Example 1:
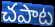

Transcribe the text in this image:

చపాట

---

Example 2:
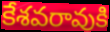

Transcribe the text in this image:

కేశవరావుకి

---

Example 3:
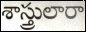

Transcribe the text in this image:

శాస్త్రులారా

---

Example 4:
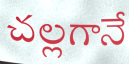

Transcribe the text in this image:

చల్లగానే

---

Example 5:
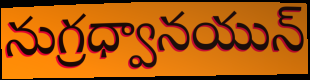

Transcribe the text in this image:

నుగ్రధ్వానయున్